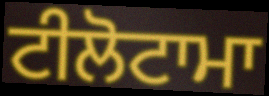
ਟੀਲੋਟਾਮਾ